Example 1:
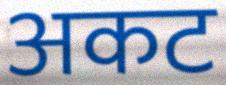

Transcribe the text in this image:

अकट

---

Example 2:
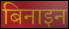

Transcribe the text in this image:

बिनाइन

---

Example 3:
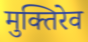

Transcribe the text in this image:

मुक्तिरेव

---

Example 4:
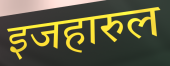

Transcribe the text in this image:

इजहारुल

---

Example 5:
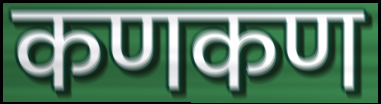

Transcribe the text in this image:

कणकण